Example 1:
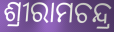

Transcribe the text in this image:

ଶ୍ରୀରାମଚନ୍ଦ୍ର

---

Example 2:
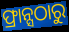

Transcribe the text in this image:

ଫ୍ରାନ୍ସଠାରୁ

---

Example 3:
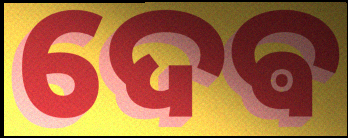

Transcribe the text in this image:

ଦେଵ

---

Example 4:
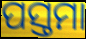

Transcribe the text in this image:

ପସ୍ତମା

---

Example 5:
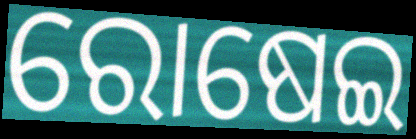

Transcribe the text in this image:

ରୋଷେଇ